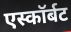
एस्कॉर्बट